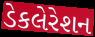
ડેકલેરેશન